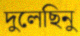
দুলেছিনু